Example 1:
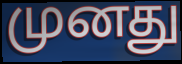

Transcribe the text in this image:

முனது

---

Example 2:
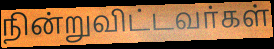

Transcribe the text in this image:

நின்றுவிட்டவர்கள்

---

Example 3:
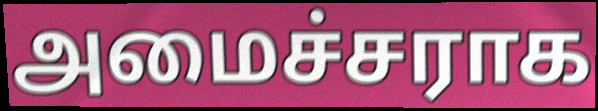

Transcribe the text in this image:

அமைச்சராக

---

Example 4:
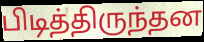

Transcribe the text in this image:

பிடித்திருந்தன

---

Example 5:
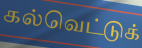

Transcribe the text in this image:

கல்வெட்டுக்